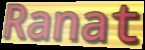
Ranat